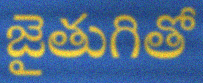
జైతుగితో